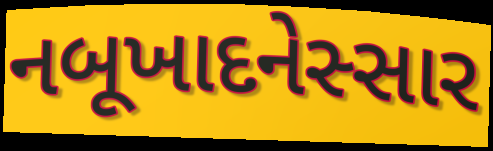
નબૂખાદનેસ્સાર